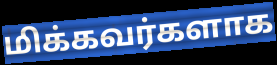
மிக்கவர்களாக